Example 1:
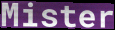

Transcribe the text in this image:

Mister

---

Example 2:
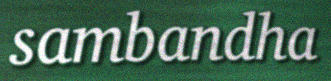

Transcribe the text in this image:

sambandha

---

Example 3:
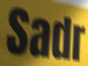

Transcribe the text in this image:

Sadr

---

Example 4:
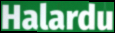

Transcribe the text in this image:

Halardu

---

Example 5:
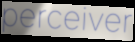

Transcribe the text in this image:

perceiver